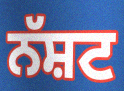
ਨੱਸ਼ਟ